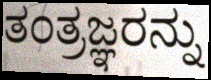
ತಂತ್ರಜ್ಞರನ್ನು